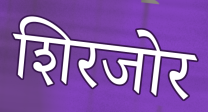
शिरजोर